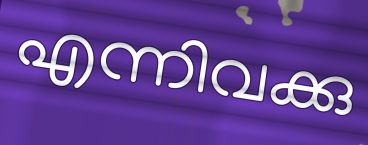
എന്നിവക്കു